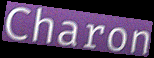
Charon